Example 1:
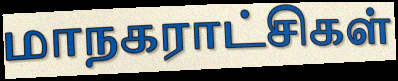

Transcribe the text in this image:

மாநகராட்சிகள்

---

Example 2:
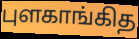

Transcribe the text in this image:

புளகாங்கித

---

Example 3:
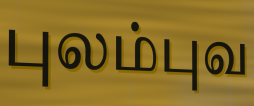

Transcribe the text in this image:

புலம்புவ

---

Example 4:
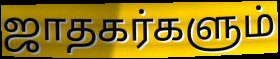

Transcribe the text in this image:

ஜாதகர்களும்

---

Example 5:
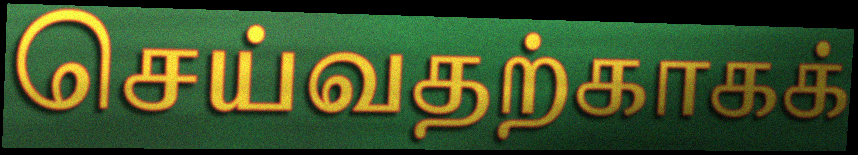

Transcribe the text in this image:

செய்வதற்காகக்